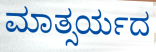
ಮಾತ್ಸರ್ಯದ